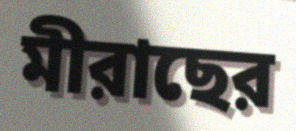
মীরাছের